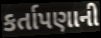
કર્તાપણાની